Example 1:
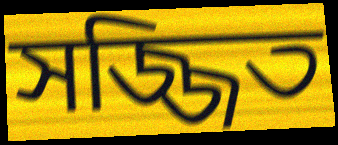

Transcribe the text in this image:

সজ্জিত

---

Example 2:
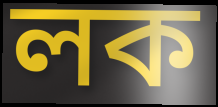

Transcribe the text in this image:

লক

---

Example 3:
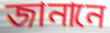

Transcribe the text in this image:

জানানে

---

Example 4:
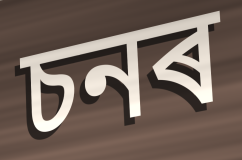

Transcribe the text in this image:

চনৰ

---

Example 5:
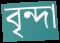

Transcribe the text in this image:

বৃন্দা